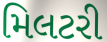
મિલટરી